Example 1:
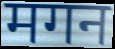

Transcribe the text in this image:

मगन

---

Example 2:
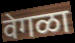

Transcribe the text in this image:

वेगळा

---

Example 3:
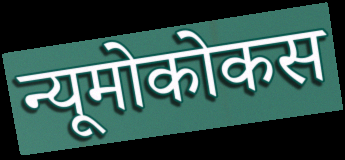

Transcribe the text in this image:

न्यूमोकोकस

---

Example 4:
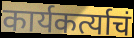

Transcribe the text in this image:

कार्यकर्त्याचं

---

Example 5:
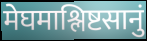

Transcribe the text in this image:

मेघमाश्लिष्टसानुं